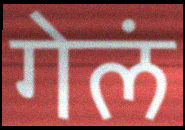
गेलं